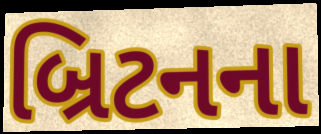
બ્રિટનના